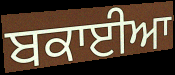
ਬਕਾਈਆ